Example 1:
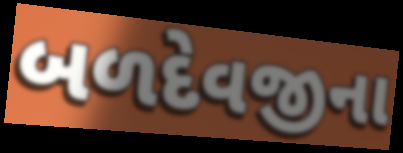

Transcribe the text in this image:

બળદેવજીના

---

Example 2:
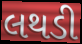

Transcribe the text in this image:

લથડી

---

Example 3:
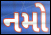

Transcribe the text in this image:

નમો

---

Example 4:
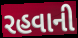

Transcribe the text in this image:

રહવાની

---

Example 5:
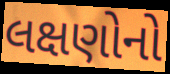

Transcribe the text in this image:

લક્ષણોનો